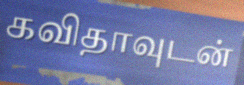
கவிதாவுடன்